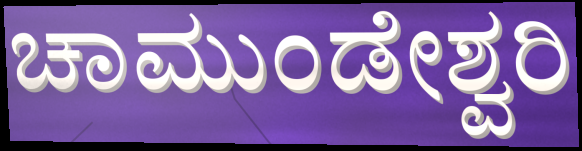
ಚಾಮುಂಡೇಶ್ವರಿ